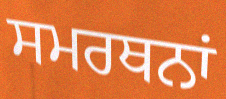
ਸਮਰਥਨਾਂ